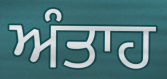
ਅੰਤਾਹ